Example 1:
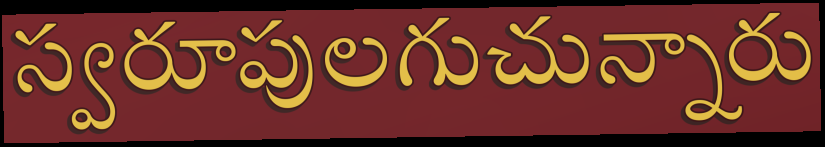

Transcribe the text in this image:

స్వరూపులగుచున్నారు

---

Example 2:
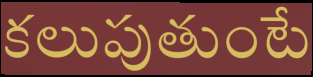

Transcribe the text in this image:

కలుపుతుంటే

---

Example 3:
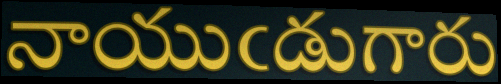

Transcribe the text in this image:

నాయుఁడుగారు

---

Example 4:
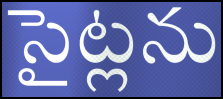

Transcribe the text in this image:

సైట్లను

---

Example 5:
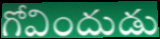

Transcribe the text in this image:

గోవిందుడు